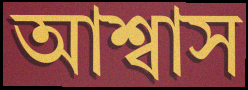
আশ্বাস